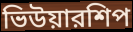
ভিউয়ারশিপ